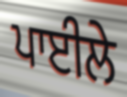
ਪਾਈਲੇ